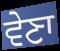
ਵੇਣਾ